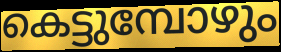
കെട്ടുമ്പോഴും